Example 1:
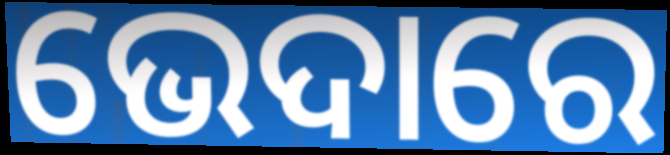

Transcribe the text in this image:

ଭେଦାରେ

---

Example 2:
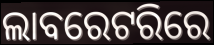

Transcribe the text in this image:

ଲାବରେଟରିରେ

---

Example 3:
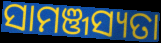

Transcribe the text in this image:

ସାମଞ୍ଜସ୍ୟତା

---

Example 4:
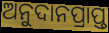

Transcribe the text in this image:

ଅନୁଦାନପ୍ରାପ୍ତ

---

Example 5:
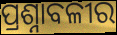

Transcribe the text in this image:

ପ୍ରଶ୍ନାବଳୀର